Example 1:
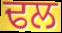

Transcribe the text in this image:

ਢਲ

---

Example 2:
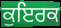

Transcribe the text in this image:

ਕੁਇਰਕ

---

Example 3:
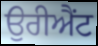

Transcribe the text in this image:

ਉਰੀਐਂਟ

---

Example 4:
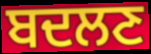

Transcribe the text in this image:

ਬਦਲਣ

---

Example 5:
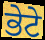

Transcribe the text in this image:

ਭੇਟੇ